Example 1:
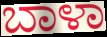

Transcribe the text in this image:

ಬಾಳಾ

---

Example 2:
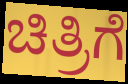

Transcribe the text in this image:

ಚಿತ್ರಿಗೆ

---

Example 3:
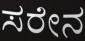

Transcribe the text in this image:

ಸರೇನ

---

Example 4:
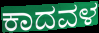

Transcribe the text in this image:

ಕಾದವಳ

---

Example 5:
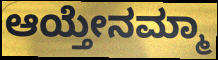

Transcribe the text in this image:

ಆಯ್ತೇನಮ್ಮಾ